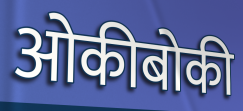
ओकीबोकी